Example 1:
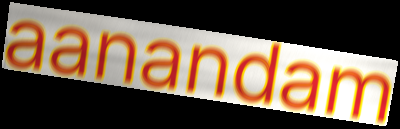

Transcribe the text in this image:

aanandam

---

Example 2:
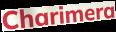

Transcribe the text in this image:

Charimera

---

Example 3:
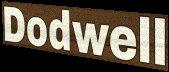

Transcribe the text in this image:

Dodwell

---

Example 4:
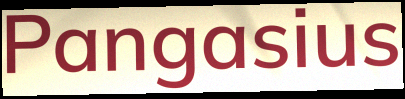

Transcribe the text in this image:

Pangasius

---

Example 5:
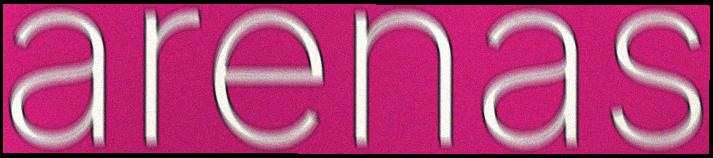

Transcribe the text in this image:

arenas